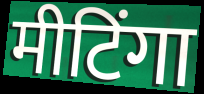
मीटिंगा